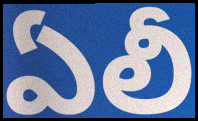
ఏలీ